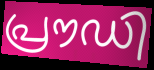
പ്രൗഡി